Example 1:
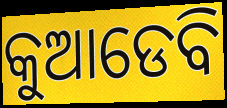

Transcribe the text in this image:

କୁଆଡେବି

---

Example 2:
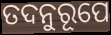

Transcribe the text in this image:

ତଦନୁରୂପେ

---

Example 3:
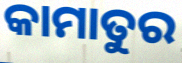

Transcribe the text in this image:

କାମାତୁର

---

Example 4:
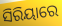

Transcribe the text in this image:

ସିରିୟାରେ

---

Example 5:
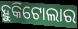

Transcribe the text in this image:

ହୁକିଟୋଲାର